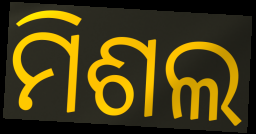
ମିଶଲ